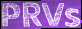
PRVs